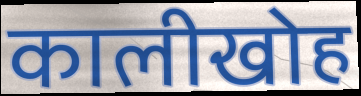
कालीखोह